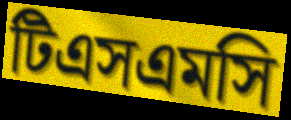
টিএসএমসি